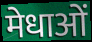
मेधाओं